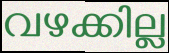
വഴക്കില്ല